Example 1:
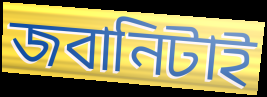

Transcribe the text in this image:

জবানিটাই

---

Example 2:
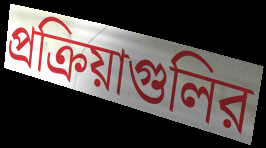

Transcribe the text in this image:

প্রক্রিয়াগুলির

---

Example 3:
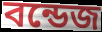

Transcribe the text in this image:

বন্ডেজ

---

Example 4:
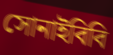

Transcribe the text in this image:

সোনাইবিবি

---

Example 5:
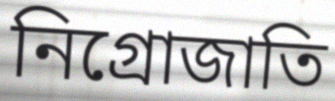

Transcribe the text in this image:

নিগ্রোজাতি